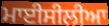
ਮਾਈਸੀਲੀਆ